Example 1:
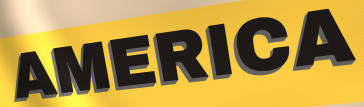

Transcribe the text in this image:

AMERICA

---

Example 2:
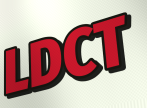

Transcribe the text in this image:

LDCT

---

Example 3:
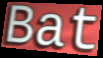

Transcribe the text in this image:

Bat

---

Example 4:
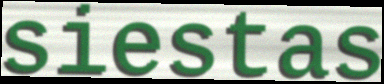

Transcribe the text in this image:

siestas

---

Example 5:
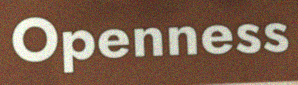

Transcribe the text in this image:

Openness